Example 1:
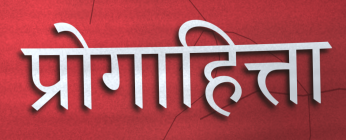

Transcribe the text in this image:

प्रोगाहित्ता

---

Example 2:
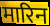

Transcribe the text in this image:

मारिन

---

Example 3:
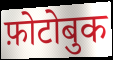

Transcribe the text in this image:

फ़ोटोबुक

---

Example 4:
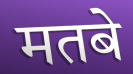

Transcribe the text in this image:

मतबे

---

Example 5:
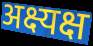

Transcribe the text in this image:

अक्ष्यक्ष